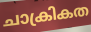
ചാക്രികത